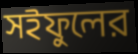
সইফুলের